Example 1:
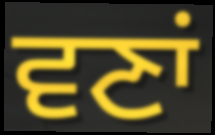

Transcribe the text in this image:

ਵਣਾਂ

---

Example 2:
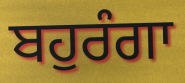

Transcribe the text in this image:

ਬਹੁਰੰਗਾ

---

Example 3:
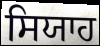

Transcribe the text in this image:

ਸਿਯਾਹ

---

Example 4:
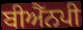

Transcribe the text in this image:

ਬੀਐੱਨਪੀ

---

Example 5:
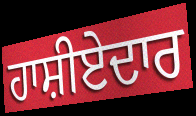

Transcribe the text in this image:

ਹਾਸ਼ੀਏਦਾਰ